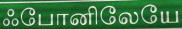
ஃபோனிலேயே